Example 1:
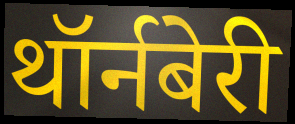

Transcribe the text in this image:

थॉर्नबेरी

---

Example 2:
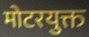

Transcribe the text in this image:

मोटरयुक्त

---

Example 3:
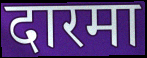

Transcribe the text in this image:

दारमा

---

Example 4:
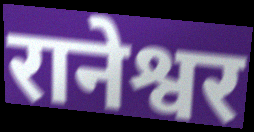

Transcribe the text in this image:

रानेश्वर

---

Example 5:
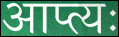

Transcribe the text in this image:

आप्त्यः